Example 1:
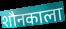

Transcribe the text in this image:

शौनकाला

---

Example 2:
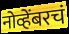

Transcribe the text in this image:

नोव्हेंबरचं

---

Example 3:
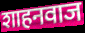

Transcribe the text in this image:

शाहनवाज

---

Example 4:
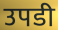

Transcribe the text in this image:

उपडी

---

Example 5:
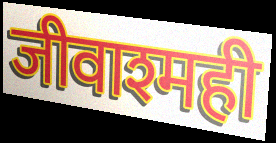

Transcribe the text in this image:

जीवाश्मही